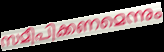
സമീപിക്കണമെന്നും